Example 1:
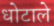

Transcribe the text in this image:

धोटाले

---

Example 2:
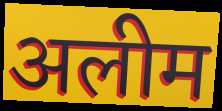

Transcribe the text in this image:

अलीम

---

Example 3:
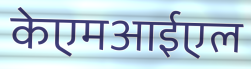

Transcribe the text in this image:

केएमआईएल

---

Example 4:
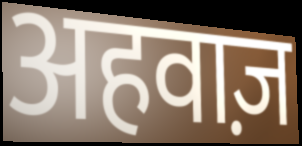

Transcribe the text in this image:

अहवाज़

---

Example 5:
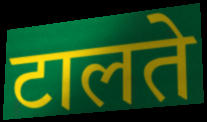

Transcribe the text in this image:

टालते